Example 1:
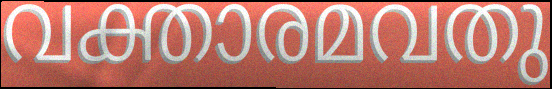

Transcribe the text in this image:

വക്താരമവതു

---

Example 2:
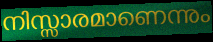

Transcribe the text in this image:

നിസ്സാരമാണെന്നും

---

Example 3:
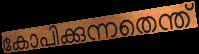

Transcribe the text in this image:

കോപിക്കുന്നതെന്ത്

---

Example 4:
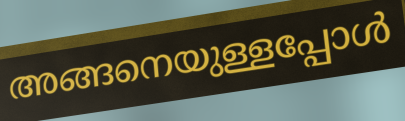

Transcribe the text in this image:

അങ്ങനെയുള്ളപ്പോൾ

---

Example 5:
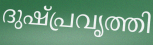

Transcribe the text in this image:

ദുഷ്പ്രവൃത്തി